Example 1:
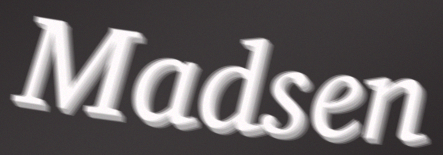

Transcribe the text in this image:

Madsen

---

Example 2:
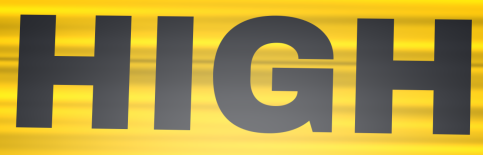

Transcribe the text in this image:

HIGH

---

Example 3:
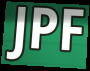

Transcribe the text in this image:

JPF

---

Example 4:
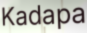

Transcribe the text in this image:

Kadapa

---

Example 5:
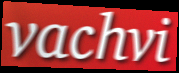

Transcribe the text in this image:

vachvi